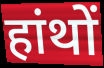
हांथों